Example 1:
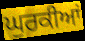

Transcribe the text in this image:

ਘੁਰਕੀਆਂ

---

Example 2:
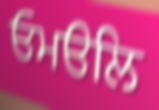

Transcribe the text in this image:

ਓਮੳਲਿ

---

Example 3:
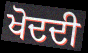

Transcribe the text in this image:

ਖੋਦਦੀ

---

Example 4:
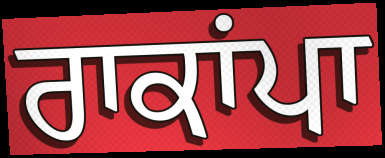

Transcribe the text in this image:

ਰਾਕਾਂਪਾ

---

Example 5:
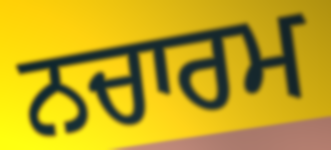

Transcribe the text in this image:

ਨਚਾਰਮ